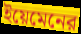
ইয়েমেনের